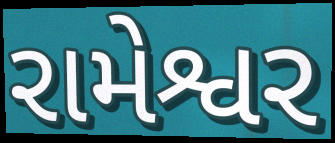
રામેશ્વર